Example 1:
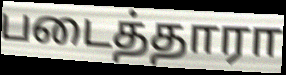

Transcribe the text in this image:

படைத்தாரா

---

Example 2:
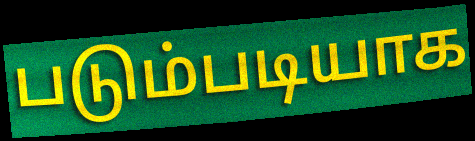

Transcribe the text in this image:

படும்படியாக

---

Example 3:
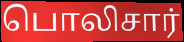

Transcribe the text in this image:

பொலிசார்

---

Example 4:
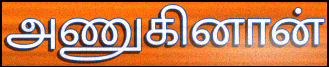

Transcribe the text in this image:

அணுகினான்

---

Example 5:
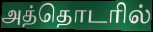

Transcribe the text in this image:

அத்தொடரில்